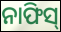
ନାଫିସ୍